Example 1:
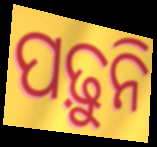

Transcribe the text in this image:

ପଢ଼ୁନି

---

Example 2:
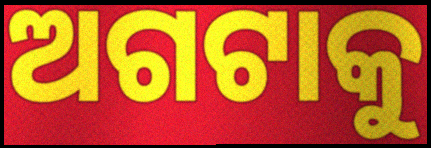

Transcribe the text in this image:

ଅଗଟାକୁ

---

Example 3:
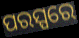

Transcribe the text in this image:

ପରସ୍ପରେ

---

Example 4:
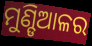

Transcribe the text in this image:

ମୁଣ୍ଡିଆଳର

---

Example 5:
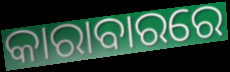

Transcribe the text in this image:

କାରାବାରରେ